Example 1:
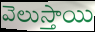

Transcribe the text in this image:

వెలుస్తాయి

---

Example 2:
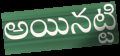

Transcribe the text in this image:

అయినట్టి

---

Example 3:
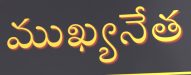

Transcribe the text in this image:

ముఖ్యనేత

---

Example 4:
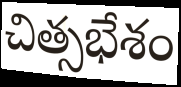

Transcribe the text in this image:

చిత్సభేశం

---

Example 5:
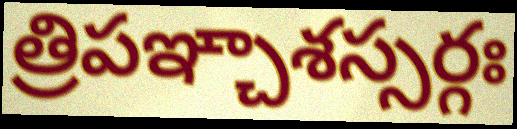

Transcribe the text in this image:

త్రిపఞ్చాశస్సర్గః